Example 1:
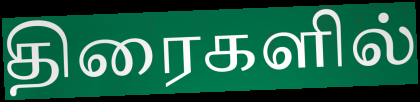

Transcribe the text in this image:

திரைகளில்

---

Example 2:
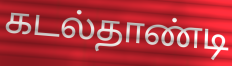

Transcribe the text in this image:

கடல்தாண்டி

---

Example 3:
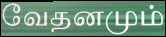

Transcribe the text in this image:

வேதனமும்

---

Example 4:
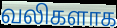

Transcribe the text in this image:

வலிகளாக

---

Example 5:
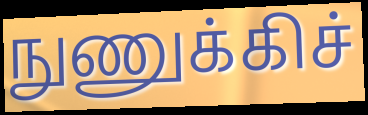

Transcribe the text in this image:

நுணுக்கிச்